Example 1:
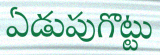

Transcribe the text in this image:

ఏడుపుగొట్టు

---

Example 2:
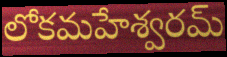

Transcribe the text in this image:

లోకమహేశ్వరమ్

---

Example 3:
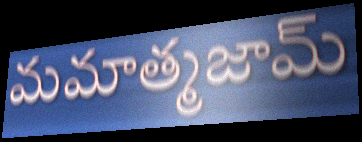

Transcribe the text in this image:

మమాత్మజామ్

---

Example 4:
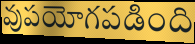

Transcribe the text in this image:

వుపయోగపడింది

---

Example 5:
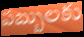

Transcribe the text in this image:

పబ్బులకు